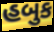
હબુક